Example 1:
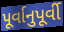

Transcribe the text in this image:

પૂર્વાનુપૂર્વી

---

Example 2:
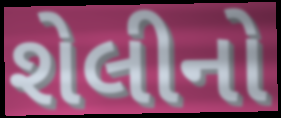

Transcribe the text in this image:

શેલીનો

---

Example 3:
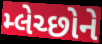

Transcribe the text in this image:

મ્લેચ્છોને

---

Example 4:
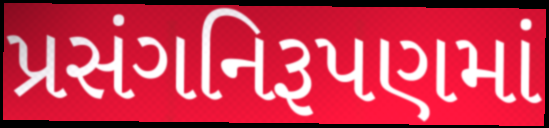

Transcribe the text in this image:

પ્રસંગનિરૂપણમાં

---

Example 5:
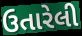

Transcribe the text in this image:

ઉતારેલી